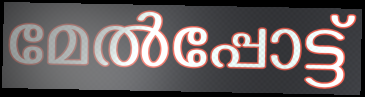
മേൽപ്പോട്ട്